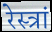
रेस्त्रां